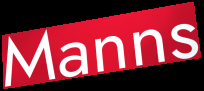
Manns